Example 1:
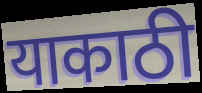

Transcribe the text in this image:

याकाठी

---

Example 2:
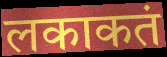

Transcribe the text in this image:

लकाकतं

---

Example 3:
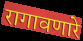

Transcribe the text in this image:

रागावणारे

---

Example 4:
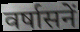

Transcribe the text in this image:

वर्षासनें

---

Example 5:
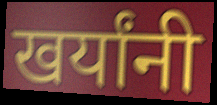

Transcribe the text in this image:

खर्यांनी